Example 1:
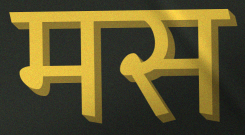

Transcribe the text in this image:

मस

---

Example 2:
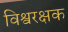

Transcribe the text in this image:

विश्वरक्षक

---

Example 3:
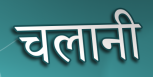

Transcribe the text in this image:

चलानी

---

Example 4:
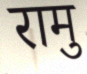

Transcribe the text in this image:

रामु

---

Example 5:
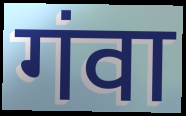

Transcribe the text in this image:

गंवा